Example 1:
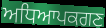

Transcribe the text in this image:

ਅਧਿਆਪਕਗਣ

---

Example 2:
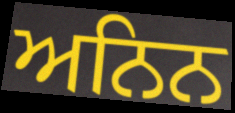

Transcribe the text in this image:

ਅਨਿਨ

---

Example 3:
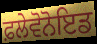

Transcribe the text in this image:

ਫ਼ਲੇਵੋਨੋਇਡ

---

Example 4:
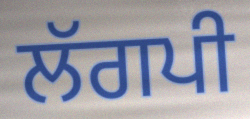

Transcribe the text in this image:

ਲੱਗਪੀ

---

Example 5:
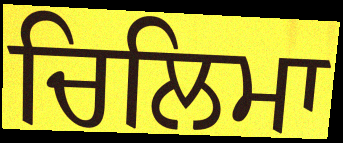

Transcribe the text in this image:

ਚਿਲਿਮਾ